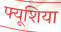
फ्यूशिया